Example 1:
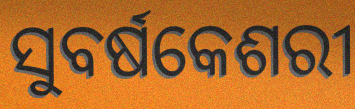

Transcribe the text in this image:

ସୁବର୍ଷକେଶରୀ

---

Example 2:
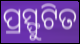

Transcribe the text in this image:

ପ୍ରସ୍ଫୁଟିତ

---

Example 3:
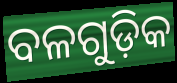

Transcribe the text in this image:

ବଳଗୁଡ଼ିକ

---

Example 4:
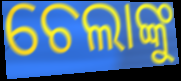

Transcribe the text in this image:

ଚେଲାଙ୍କୁ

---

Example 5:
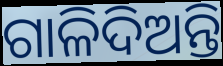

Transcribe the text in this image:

ଗାଳିଦିଅନ୍ତି